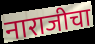
नाराजीचा